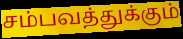
சம்பவத்துக்கும்